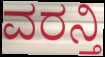
ವರನ್ತಿ